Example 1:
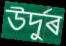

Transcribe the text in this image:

উৰ্দুৰ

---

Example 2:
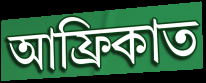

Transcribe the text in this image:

আফ্ৰিকাত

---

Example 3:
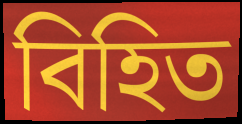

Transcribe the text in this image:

বিহিত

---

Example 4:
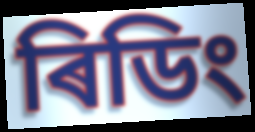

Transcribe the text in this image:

ৰিডিং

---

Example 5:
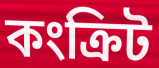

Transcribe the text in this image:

কংক্ৰিট